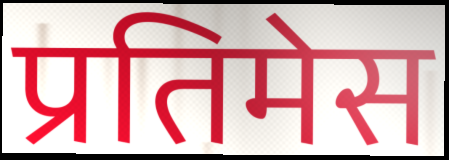
प्रतिमेस